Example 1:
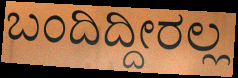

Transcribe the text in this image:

ಬಂದಿದ್ದೀರಲ್ಲ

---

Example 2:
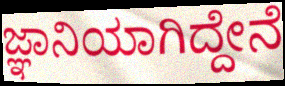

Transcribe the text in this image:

ಜ್ಞಾನಿಯಾಗಿದ್ದೇನೆ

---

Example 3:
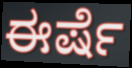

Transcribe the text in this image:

ಈರ್ಷೆ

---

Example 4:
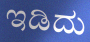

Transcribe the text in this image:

ಇಡಿದು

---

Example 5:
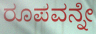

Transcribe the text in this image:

ರೂಪವನ್ನೇ